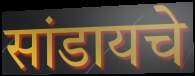
सांडायचे